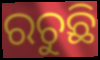
ରଚୁଛି